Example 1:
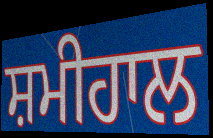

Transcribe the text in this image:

ਸ਼ਮੀਹਾਲ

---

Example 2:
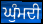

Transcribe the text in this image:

ਘੁੰਮਦੀ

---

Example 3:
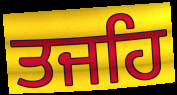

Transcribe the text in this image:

ਤਜਹਿ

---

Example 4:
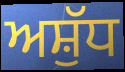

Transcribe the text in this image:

ਅਸ਼ੁੱਧ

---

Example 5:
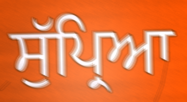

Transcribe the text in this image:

ਸੁੱਪ੍ਰਿਆ